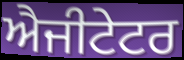
ਐਜੀਟੇਟਰ